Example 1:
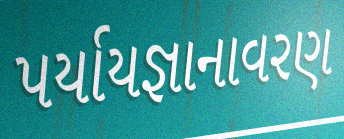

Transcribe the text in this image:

પર્યાયજ્ઞાનાવરણ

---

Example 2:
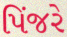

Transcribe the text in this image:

પિંજરે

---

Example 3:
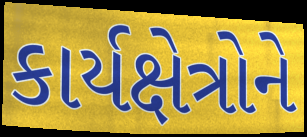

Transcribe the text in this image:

કાર્યક્ષેત્રોને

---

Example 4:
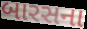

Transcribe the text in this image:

બારસના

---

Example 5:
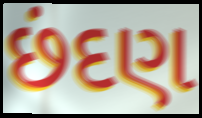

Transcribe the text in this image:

છંદણ